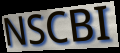
NSCBI